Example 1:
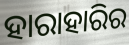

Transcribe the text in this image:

ହାରାହାରିର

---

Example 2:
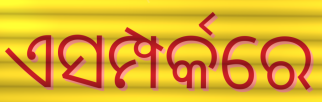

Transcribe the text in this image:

ଏସମ୍ପର୍କରେ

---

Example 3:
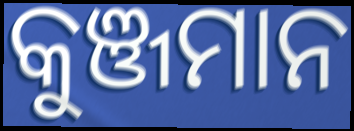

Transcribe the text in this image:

କୁଞ୍ଜମାନ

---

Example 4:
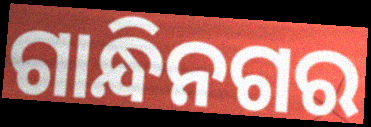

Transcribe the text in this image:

ଗାନ୍ଧିନଗର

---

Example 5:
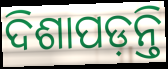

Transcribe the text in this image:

ଦିଶାପଡ଼ନ୍ତି